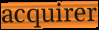
acquirer